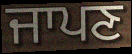
ਜਾਪਣ